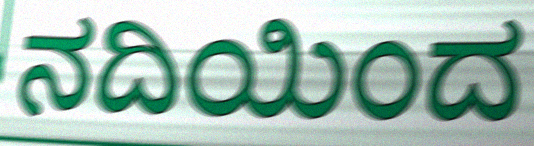
ನದಿಯಿಂದ